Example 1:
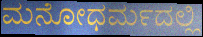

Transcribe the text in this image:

ಮನೋಧರ್ಮದಲ್ಲಿ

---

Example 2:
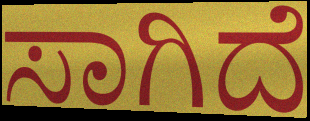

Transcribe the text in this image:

ಸಾಗಿದೆ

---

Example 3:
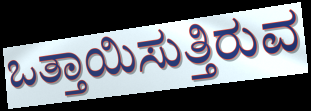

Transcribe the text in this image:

ಒತ್ತಾಯಿಸುತ್ತಿರುವ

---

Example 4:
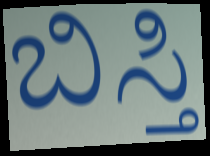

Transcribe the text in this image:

ಬಿಸ್ತಿ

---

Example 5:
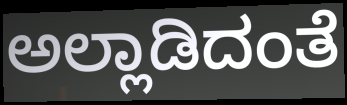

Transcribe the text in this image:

ಅಲ್ಲಾಡಿದಂತೆ